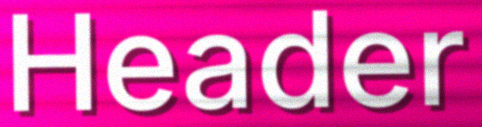
Header